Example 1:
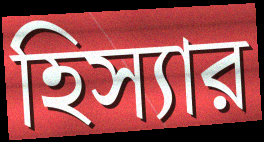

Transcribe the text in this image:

হিস্যার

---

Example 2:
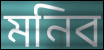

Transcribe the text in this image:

মনিব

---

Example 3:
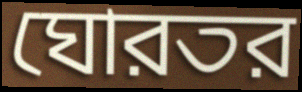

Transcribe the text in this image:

ঘোরতর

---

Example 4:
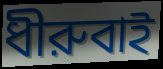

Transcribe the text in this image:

ধীরুবাই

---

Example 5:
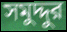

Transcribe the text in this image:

সমুদ্দুর